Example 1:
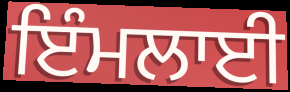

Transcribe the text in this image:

ਇੰਮਲਾਈ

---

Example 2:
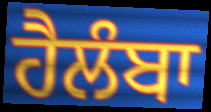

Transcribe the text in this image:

ਹੈਲੰਬਾ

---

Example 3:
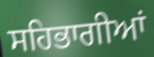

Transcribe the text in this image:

ਸਹਿਭਾਗੀਆਂ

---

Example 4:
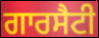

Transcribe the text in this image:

ਗਾਰਸੈਟੀ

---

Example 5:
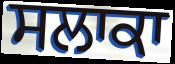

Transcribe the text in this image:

ਸਲਾਕਾ